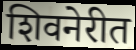
शिवनेरीत